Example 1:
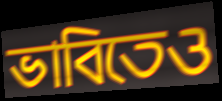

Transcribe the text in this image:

ভাবিতেও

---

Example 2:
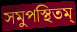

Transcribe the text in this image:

সমুপস্থিতম্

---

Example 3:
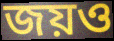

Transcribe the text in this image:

জয়ও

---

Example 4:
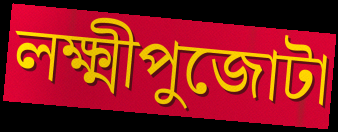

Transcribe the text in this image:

লক্ষ্মীপুজোটা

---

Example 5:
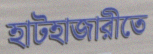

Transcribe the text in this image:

হাটহাজারীতে